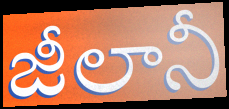
జీలానీ